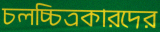
চলচ্চিত্রকারদের